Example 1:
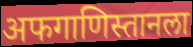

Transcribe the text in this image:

अफगाणिस्तानला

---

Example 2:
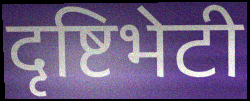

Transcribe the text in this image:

दृष्टिभेटी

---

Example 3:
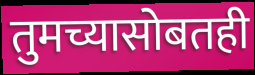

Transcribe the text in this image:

तुमच्यासोबतही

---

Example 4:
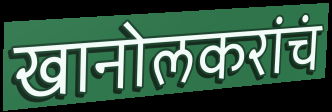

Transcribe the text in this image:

खानोलकरांचं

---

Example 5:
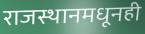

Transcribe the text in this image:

राजस्थानमधूनही